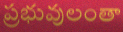
ప్రభువులంతా